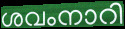
ശവംനാറി